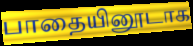
பாதையினூடாக